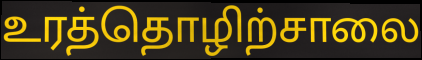
உரத்தொழிற்சாலை